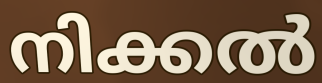
നിക്കൽ